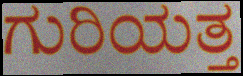
ಗುರಿಯತ್ತ